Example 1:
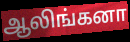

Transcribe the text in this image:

ஆலிங்கனா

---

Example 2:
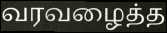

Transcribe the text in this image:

வரவழைத்த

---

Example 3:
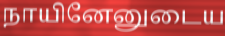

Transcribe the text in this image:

நாயினேனுடைய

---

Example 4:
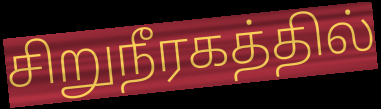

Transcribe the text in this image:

சிறுநீரகத்தில்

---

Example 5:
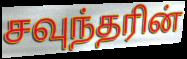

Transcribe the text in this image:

சவுந்தரின்